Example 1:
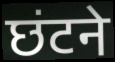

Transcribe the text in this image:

छंटने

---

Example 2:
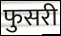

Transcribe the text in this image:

फुसरी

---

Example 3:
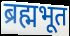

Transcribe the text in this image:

ब्रह्मभूत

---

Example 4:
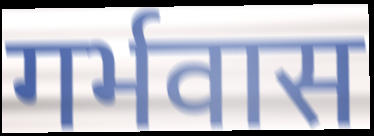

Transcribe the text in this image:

गर्भवास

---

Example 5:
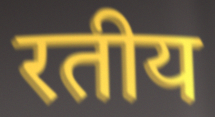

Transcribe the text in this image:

रतीय